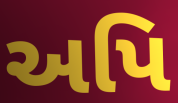
અપિ